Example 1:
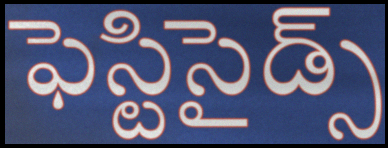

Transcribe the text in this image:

ఫెస్టిసైడ్స్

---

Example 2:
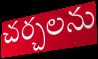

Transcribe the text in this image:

చర్చలను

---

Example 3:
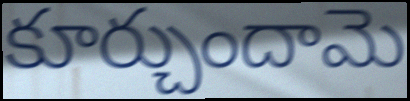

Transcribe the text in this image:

కూర్చుందామె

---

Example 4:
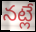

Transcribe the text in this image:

నట్లే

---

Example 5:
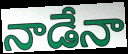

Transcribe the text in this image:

నాడేనా